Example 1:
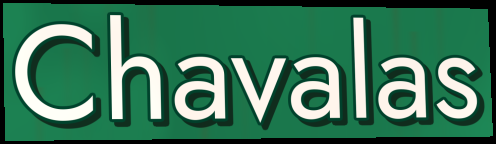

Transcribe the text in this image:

Chavalas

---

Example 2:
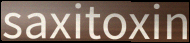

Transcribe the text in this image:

saxitoxin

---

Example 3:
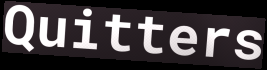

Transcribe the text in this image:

Quitters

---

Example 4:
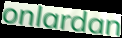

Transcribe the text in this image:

onlardan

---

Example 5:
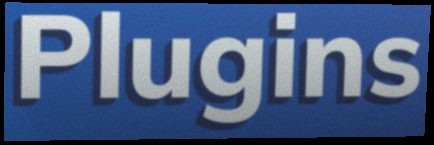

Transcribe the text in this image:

Plugins